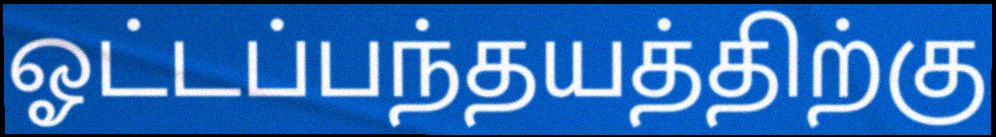
ஓட்டப்பந்தயத்திற்கு